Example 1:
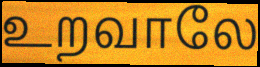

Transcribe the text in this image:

உறவாலே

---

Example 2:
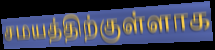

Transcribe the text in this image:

சமயத்திற்குள்ளாக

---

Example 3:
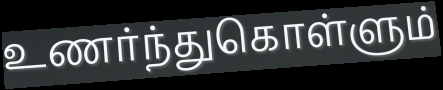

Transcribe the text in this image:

உணர்ந்துகொள்ளும்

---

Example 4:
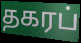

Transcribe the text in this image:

தகரப்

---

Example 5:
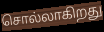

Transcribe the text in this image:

சொல்லாகிறது